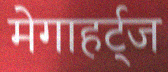
मेगाहर्ट्ज